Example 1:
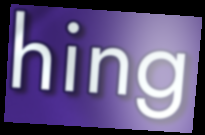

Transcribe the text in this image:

hing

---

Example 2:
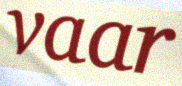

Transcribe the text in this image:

vaar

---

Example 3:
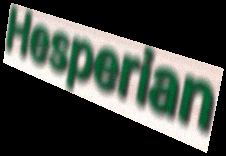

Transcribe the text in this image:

Hesperian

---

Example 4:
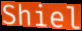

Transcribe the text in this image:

Shiel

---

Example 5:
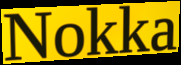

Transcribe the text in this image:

Nokka